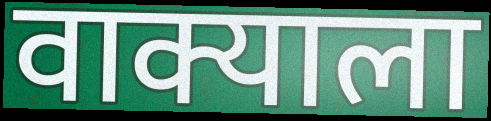
वाक्याला